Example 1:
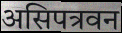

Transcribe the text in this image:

असिपत्रवन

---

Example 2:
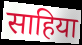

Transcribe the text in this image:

साहिया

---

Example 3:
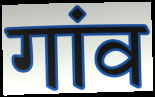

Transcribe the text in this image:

गांव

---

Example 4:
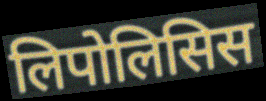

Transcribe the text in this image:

लिपोलिसिस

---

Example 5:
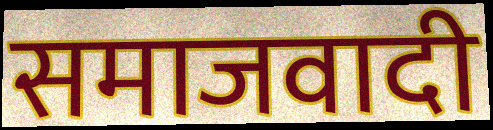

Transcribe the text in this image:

समाजवादी